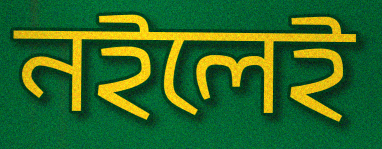
নইলেই